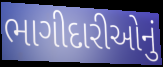
ભાગીદારીઓનું